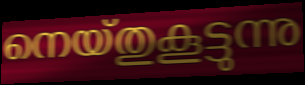
നെയ്തുകൂട്ടുന്നു